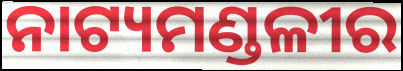
ନାଟ୍ୟମଣ୍ଡଳୀର